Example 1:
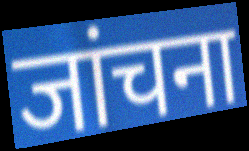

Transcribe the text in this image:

जांचना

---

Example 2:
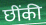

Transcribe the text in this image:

छींकी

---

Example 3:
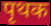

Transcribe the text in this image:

पृथक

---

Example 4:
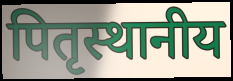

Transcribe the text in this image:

पितृस्थानीय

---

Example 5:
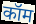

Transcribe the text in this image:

कॉम